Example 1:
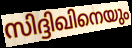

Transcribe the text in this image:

സിദ്ദിഖിനെയും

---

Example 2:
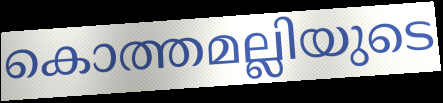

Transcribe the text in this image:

കൊത്തമല്ലിയുടെ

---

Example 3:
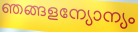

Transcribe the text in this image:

ഞങ്ങളന്യോന്യം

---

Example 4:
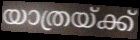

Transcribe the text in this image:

യാത്രയ്ക്ക്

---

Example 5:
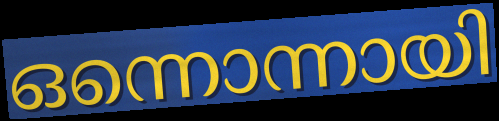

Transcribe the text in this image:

ഒന്നൊന്നായി